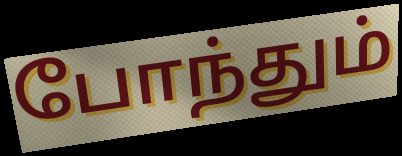
போந்தும்